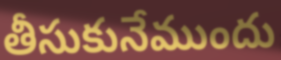
తీసుకునేముందు